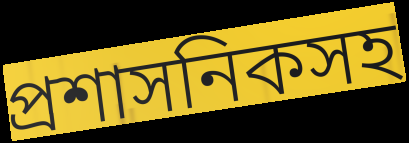
প্রশাসনিকসহ